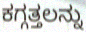
ಕಗ್ಗತ್ತಲನ್ನು